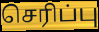
செரிப்பு